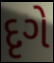
દૃગે